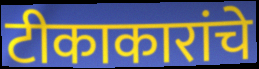
टीकाकारांचे